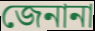
জেনানা